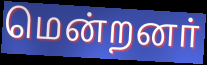
மென்றனர்